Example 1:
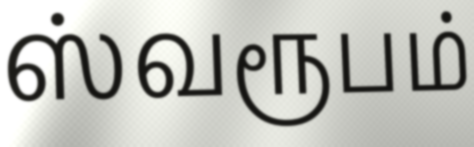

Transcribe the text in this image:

ஸ்வரூபம்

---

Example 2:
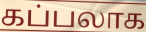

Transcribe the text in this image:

கப்பலாக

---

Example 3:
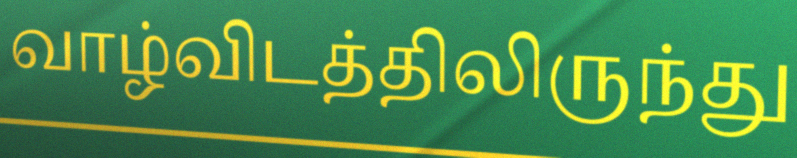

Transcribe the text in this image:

வாழ்விடத்திலிருந்து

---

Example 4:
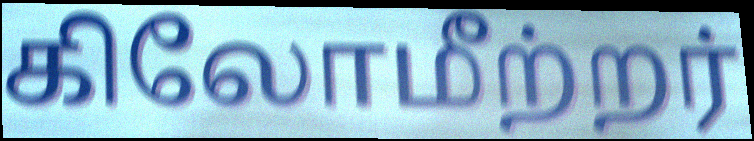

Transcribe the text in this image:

கிலோமீற்றர்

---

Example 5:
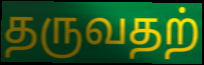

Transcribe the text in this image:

தருவதற்